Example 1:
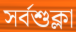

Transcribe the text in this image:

সর্বশুক্লা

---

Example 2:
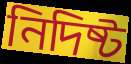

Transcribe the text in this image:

নিদিষ্ট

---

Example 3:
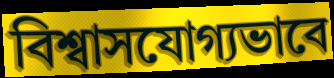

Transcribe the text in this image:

বিশ্বাসযোগ্যভাবে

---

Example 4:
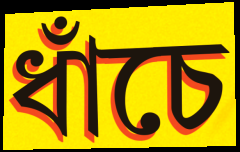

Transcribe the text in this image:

ধাঁচে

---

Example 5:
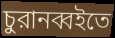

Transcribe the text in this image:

চুরানব্বইতে